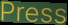
Press